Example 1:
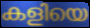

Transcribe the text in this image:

കളിയെ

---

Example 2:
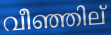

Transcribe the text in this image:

വീഞ്ഞില്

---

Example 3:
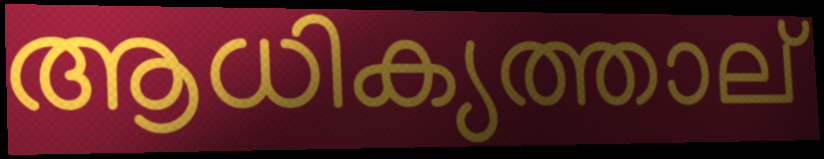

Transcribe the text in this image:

ആധിക്യത്താല്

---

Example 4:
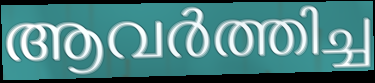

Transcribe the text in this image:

ആവർത്തിച്ച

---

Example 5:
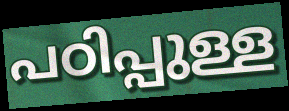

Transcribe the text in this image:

പഠിപ്പുള്ള